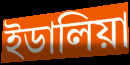
ইডালিয়া